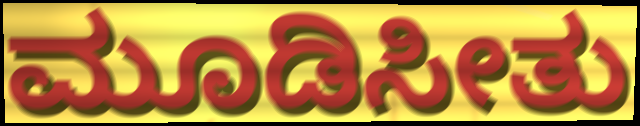
ಮೂಡಿಸೀತು